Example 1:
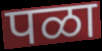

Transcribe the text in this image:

पळा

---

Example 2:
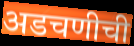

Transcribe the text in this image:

अडचणीची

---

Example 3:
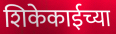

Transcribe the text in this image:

शिकेकाईच्या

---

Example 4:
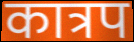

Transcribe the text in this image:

कात्रप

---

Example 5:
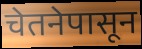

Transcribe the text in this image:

चेतनेपासून